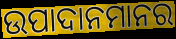
ଉପାଦାନମାନର